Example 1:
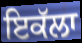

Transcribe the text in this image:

ਇਕੱਲਾ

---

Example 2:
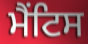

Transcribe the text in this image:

ਮੈਂਟਿਸ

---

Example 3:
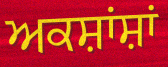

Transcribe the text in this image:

ਅਕਸ਼ਾਂਸ਼ਾਂ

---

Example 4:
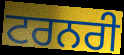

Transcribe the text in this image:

ਟਰਨਰੀ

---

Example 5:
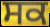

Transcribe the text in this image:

ਸਕ